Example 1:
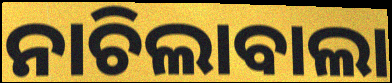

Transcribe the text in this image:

ନାଚିଲାବାଲା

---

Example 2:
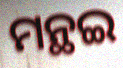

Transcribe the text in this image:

ମନ୍ଥଇ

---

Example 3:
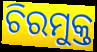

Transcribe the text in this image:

ଚିରମୁକ୍ତ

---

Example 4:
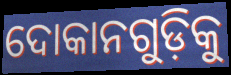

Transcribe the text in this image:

ଦୋକାନଗୁଡ଼ିକୁ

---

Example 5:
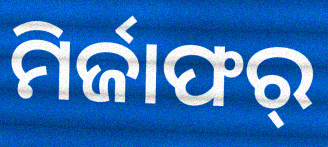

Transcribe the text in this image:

ମିର୍ଜାଫର୍